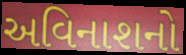
અવિનાશનો